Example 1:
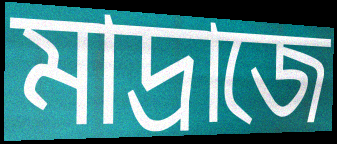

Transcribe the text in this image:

মাদ্রাজে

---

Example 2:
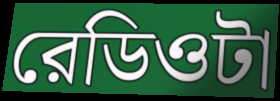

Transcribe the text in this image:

রেডিওটা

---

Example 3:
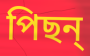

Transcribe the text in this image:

পিছন্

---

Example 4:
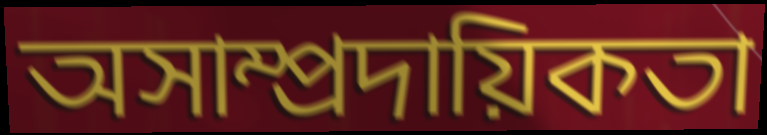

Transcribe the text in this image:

অসাম্প্রদায়িকতা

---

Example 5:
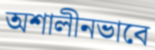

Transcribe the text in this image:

অশালীনভাবে